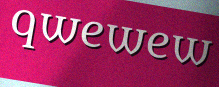
qwewew